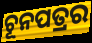
ଚୂନପତ୍ରର